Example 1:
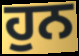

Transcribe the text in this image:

ਹੁਨ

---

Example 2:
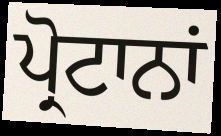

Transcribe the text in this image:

ਪ੍ਰੋਟਾਨਾਂ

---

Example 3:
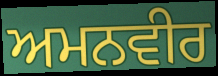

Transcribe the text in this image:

ਅਮਨਵੀਰ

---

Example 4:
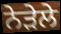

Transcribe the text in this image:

ਨੇੜੇਲੇ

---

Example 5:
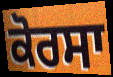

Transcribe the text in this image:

ਕੋਰਸਾ